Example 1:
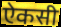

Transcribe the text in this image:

ऐकसी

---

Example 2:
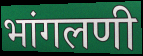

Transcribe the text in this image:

भांगलणी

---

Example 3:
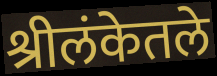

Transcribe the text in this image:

श्रीलंकेतले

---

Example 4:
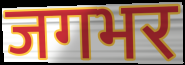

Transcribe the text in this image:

जगभर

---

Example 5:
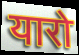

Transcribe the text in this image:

यारो